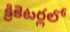
క్రికెటర్లలో